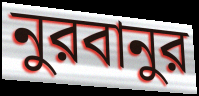
নুরবানুর